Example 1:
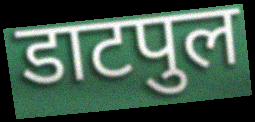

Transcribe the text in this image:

डाटपुल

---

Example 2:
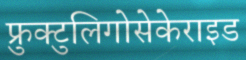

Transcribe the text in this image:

फ्रुक्टुलिगोसेकेराइड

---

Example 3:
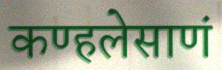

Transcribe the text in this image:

कण्हलेसाणं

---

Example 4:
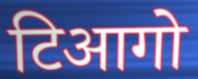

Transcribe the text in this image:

टिआगो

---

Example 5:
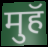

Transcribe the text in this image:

मुहॅ